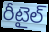
రీటైల్